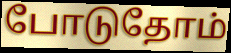
போடுதோம்